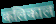
कलिकाल